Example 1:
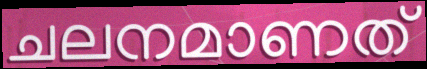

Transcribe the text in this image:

ചലനമാണത്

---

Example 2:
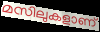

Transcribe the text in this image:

മസിലുകളാണ്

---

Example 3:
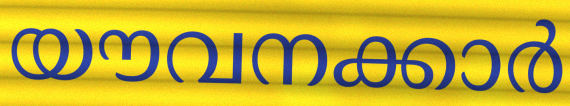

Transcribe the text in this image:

യൗവനക്കാർ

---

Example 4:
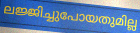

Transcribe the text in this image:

ലജ്ജിച്ചുപോയതുമില്ല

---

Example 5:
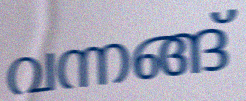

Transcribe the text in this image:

വന്നങ്ങ്